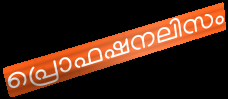
പ്രൊഫഷനലിസം